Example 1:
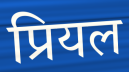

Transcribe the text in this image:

प्रियल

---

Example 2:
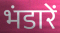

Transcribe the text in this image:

भंडारें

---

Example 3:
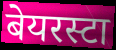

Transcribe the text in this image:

बेयरस्टा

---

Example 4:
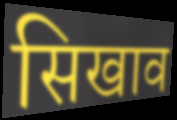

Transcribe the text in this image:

सिखाव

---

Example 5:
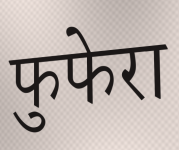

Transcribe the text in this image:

फुफेरा